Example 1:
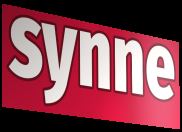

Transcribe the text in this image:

synne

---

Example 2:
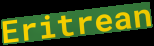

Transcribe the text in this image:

Eritrean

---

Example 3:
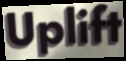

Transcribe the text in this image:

Uplift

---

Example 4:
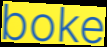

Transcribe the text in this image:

boke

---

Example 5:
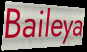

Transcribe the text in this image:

Baileya